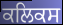
ਕਲਿਕਸ